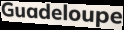
Guadeloupe